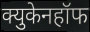
क्युकेनहॉफ